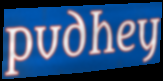
pudhey